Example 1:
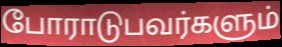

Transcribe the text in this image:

போராடுபவர்களும்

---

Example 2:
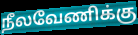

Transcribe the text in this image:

நீலவேணிக்கு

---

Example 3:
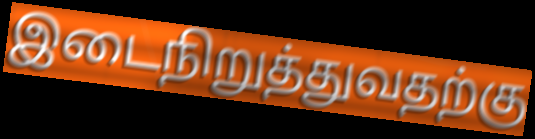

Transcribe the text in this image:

இடைநிறுத்துவதற்கு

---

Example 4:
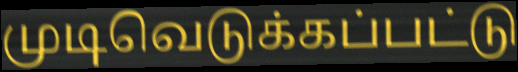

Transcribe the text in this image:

முடிவெடுக்கப்பட்டு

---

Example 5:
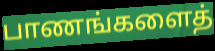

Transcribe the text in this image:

பாணங்களைத்